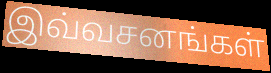
இவ்வசனங்கள்